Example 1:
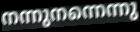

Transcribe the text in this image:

നന്നുനന്നെന്നു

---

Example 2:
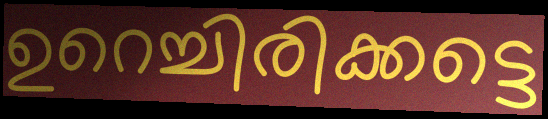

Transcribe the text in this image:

ഉറെച്ചിരിക്കട്ടെ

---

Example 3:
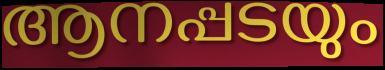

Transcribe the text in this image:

ആനപ്പടയും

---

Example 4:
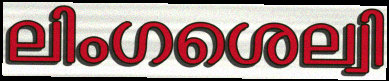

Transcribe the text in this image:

ലിംഗശെല്വി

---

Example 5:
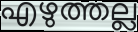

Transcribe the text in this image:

എഴുത്തല്ല